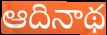
ఆదినాథ